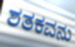
ಶತಕವನು